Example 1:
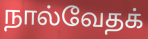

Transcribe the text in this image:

நால்வேதக்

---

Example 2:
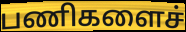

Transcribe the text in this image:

பணிகளைச்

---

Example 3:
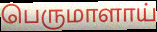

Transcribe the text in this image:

பெருமாளாய்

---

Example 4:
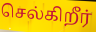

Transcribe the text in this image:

செல்கிறீர்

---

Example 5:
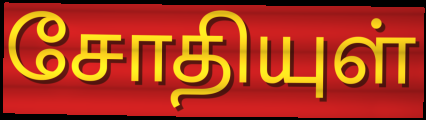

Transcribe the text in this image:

சோதியுள்